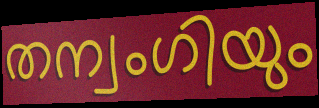
തന്വംഗിയും